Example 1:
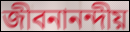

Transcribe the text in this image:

জীবনানন্দীয়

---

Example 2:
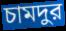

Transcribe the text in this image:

চামদুর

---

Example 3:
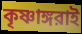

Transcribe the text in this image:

কৃষ্ণাঙ্গরাই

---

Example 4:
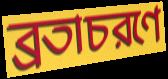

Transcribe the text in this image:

ব্রতাচরণে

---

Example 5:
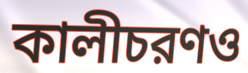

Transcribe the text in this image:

কালীচরণও